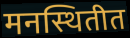
मनस्थितीत